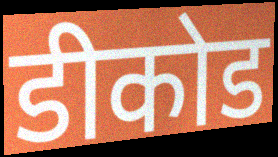
डीकोड